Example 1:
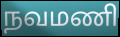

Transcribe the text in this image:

நவமணி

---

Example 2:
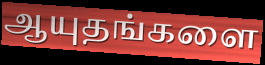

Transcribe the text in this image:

ஆயுதங்களை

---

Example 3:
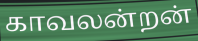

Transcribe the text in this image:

காவலன்றன்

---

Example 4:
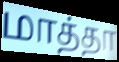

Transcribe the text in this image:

மாத்தா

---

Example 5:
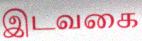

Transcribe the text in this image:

இடவகை